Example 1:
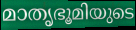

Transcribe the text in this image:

മാതൃഭൂമിയുടെ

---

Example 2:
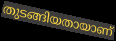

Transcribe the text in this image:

തുടങ്ങിയതായാണ്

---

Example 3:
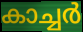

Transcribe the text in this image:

കാച്ചർ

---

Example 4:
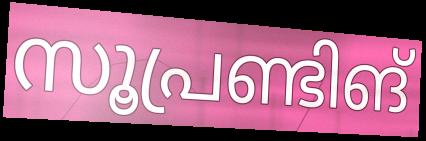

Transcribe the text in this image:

സൂപ്രണ്ടിങ്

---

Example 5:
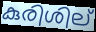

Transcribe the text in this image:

കുരിശില്